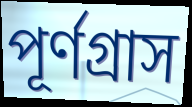
পূর্ণগ্রাস